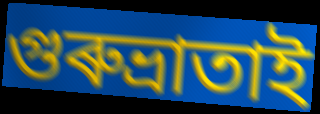
গুৰুভ্ৰাতাই